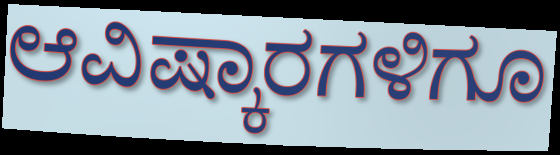
ಆವಿಷ್ಕಾರಗಳಿಗೂ